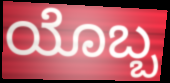
ಯೊಬ್ಬ